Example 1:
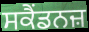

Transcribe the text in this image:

ਸਕੈਂਡਨਜ਼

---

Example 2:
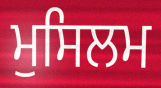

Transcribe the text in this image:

ਮੁਸਿਲਮ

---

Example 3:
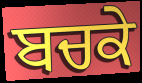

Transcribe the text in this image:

ਬਚਕੇ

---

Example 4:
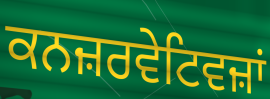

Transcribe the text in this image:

ਕਨਜ਼ਰਵੇਟਿਵਜ਼ਾਂ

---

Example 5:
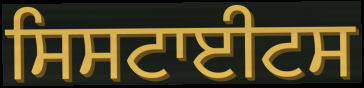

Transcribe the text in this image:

ਸਿਸਟਾਈਟਸ